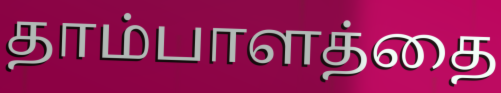
தாம்பாளத்தை